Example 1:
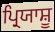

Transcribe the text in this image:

ਪ੍ਰਿਯਾਸ਼ੂ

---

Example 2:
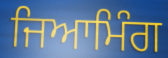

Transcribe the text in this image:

ਜਿਆਮਿੰਗ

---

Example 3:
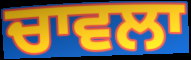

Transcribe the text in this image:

ਚਾਵਲਾ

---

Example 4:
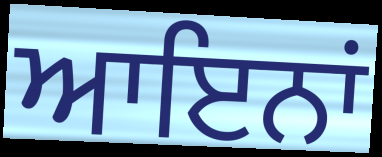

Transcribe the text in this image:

ਆਇਨਾਂ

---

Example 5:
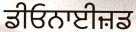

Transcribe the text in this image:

ਡੀਓਨਾਈਜ਼ਡ